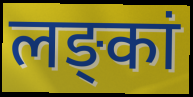
लङ्कां